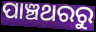
ପାଞ୍ଚଥରରୁ